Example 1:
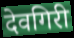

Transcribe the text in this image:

देवगिरी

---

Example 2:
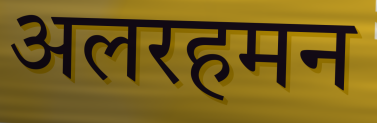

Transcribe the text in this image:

अलरहमन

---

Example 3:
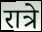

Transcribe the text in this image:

रात्रे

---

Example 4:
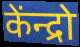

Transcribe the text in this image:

केंन्द्रो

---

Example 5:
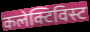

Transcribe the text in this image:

कलेक्टिविस्ट